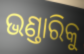
ଭଣ୍ଡାରିକୁ